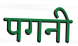
पगनी